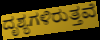
ದೃಶ್ಯಗಳಿರುತ್ತವೆ